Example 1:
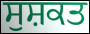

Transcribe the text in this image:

ਸੁਸ਼ਕਤ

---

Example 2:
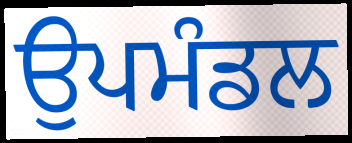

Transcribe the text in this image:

ਉਪਮੰਡਲ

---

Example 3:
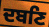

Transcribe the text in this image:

ਦਬਣਿ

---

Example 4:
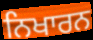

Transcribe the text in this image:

ਨਿਖਾਰਨ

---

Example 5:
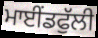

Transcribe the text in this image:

ਮਾਈਂਡਫੁੱਲੀ